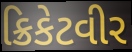
ક્રિકેટવીર